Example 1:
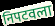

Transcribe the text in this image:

निपटवला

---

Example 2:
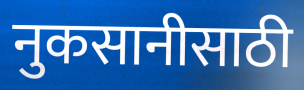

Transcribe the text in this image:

नुकसानीसाठी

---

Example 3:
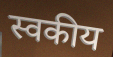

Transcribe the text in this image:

स्वकीय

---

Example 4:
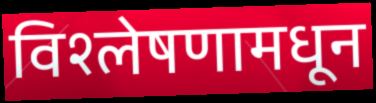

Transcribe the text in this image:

विश्लेषणामधून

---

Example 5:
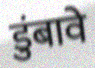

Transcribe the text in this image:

डुंबावे